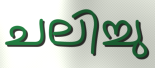
ചലിച്ചു